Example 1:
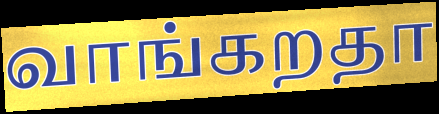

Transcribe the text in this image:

வாங்கறதா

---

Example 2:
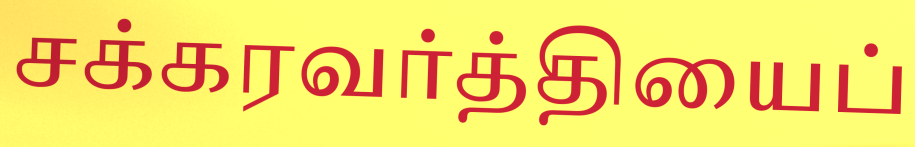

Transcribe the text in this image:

சக்கரவர்த்தியைப்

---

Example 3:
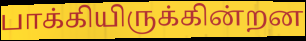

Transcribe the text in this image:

பாக்கியிருக்கின்றன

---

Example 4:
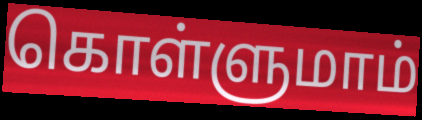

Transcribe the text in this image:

கொள்ளுமாம்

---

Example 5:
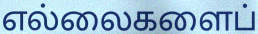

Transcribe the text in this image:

எல்லைகளைப்